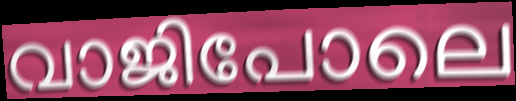
വാജിപോലെ